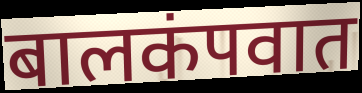
बालकंपवात